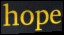
hope